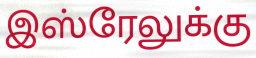
இஸ்ரேலுக்கு